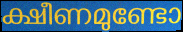
ക്ഷീണമുണ്ടോ